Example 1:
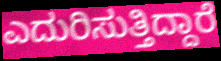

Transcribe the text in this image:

ಎದುರಿಸುತ್ತಿದ್ದಾರೆ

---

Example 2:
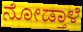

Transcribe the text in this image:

ನೋಡ್ತಾಳೆ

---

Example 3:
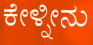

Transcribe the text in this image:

ಕೇಳ್ನೀನು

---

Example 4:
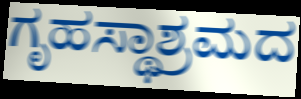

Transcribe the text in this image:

ಗೃಹಸ್ಥಾಶ್ರಮದ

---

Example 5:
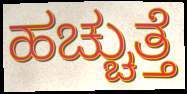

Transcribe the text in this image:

ಹಚ್ಚುತ್ತೆ